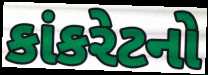
કાંકરેટનો